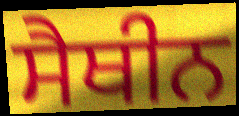
ਸੈਥੀਨ